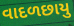
વાદળછાયુ